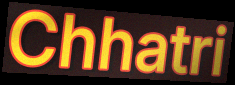
Chhatri